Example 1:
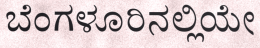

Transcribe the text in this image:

ಬೆಂಗಳೂರಿನಲ್ಲಿಯೇ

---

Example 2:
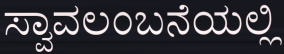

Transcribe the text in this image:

ಸ್ವಾವಲಂಬನೆಯಲ್ಲಿ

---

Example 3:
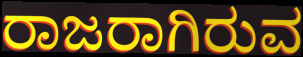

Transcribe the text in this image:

ರಾಜರಾಗಿರುವ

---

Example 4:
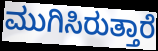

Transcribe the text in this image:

ಮುಗಿಸಿರುತ್ತಾರೆ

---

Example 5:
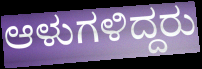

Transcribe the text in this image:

ಆಳುಗಳಿದ್ದರು